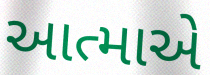
આત્માએ